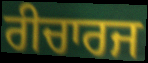
ਰੀਚਾਰਜ